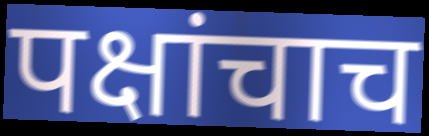
पक्षांचाच